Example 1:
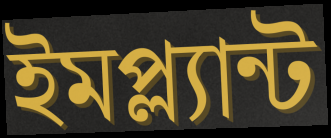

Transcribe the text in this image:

ইমপ্ল্যান্ট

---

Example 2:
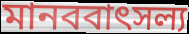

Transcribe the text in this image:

মানববাৎসল্য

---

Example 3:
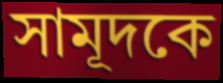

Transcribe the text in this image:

সামূদকে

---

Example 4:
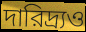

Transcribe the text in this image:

দারিদ্র্যও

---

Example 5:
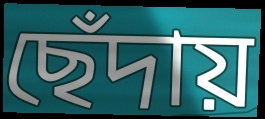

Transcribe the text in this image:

ছেঁদায়